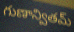
గుణాన్వితమ్